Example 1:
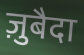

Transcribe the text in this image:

ज़ुबैदा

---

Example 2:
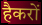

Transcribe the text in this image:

हैकरों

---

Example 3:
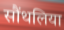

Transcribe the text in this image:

सौंथलिया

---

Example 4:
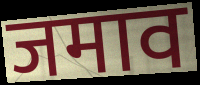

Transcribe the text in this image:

जमाव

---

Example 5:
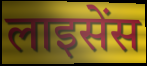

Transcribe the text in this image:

लाइसेंस